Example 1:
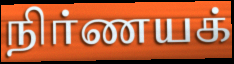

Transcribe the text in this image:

நிர்ணயக்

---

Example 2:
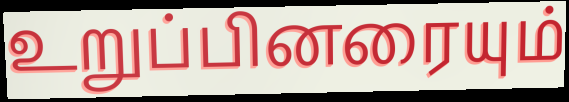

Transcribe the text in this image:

உறுப்பினரையும்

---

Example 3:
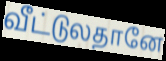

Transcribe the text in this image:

வீட்டுலதானே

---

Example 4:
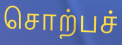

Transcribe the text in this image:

சொற்பச்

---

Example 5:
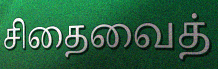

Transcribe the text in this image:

சிதைவைத்